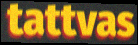
tattvas